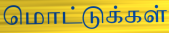
மொட்டுக்கள்